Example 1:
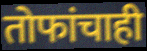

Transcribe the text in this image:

तोफांचाही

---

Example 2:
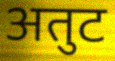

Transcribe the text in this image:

अतुट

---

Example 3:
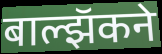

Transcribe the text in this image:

बाल्झॅकने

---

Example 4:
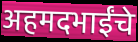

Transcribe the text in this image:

अहमदभाईंचे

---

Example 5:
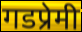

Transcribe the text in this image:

गडप्रेमी